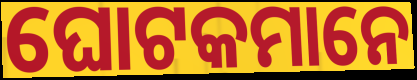
ଘୋଟକମାନେ